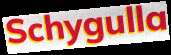
Schygulla